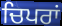
ਚਿਪਰਾਂ